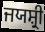
ਜਯਸ਼੍ਰੀ